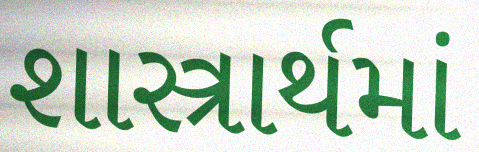
શાસ્ત્રાર્થમાં